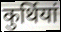
कुर्थियां